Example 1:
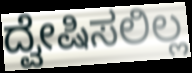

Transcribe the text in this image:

ದ್ವೇಷಿಸಲಿಲ್ಲ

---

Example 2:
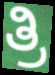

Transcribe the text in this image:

ತ್ರಿ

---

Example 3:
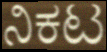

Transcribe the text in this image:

ನಿಕಟ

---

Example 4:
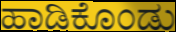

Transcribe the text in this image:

ಹಾಡಿಕೊಂಡು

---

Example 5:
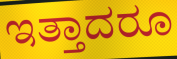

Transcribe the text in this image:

ಇತ್ತಾದರೂ